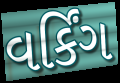
વર્કિંગ